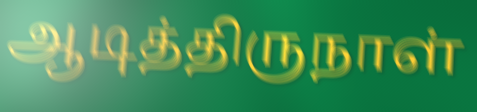
ஆடித்திருநாள்